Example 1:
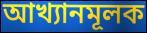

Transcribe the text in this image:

আখ্যানমূলক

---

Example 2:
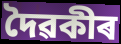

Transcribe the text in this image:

দৈৱকীৰ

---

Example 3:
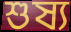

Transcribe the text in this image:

শুষ্য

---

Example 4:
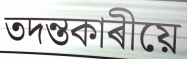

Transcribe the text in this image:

তদন্তকাৰীয়ে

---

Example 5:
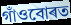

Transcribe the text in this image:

গাঁওবোৰত